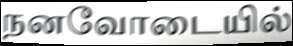
நனவோடையில்